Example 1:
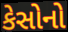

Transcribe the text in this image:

કેસોનો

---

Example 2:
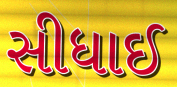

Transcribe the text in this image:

સીધાઈ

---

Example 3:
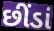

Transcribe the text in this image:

છીંડાં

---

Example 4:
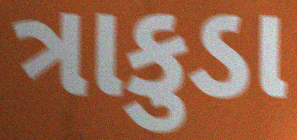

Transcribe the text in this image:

ત્રાકુડા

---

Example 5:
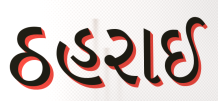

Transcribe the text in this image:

ઠહરાઈ